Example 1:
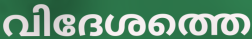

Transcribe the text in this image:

വിദേശത്തെ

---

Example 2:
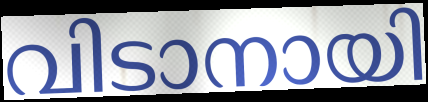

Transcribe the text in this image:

വിടാനായി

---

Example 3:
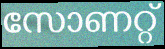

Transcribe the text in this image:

സോണറ്റ്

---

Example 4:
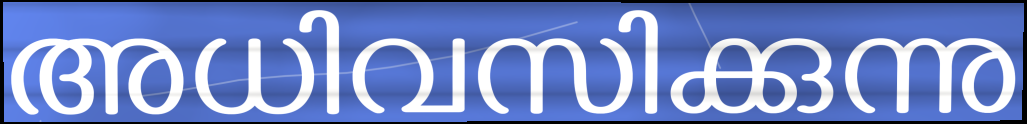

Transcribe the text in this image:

അധിവസിക്കുന്നു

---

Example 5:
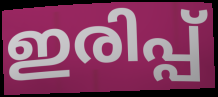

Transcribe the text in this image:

ഇരിപ്പ്